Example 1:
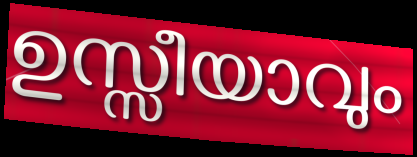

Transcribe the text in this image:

ഉസ്സീയാവും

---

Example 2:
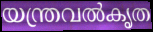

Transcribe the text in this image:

യന്ത്രവൽകൃത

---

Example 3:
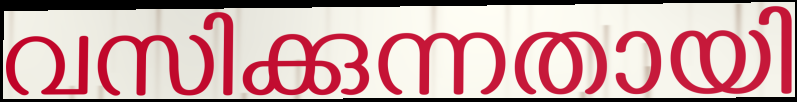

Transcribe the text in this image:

വസിക്കുന്നതായി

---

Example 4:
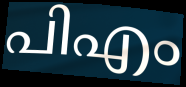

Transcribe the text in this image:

പിഎം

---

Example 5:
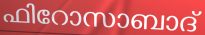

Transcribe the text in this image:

ഫിറോസാബാദ്